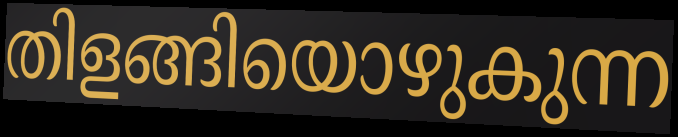
തിളങ്ങിയൊഴുകുന്ന